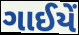
ગાઈયેં